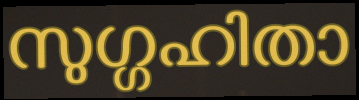
സുഗ്ഗഹിതാ